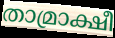
താമ്രാക്ഷീ